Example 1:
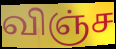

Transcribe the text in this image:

விஞ்ச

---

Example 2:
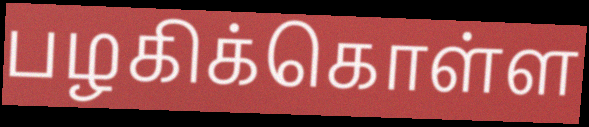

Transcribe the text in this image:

பழகிக்கொள்ள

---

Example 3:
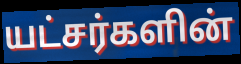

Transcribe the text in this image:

யட்சர்களின்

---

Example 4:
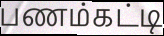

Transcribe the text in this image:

பணம்கட்டி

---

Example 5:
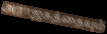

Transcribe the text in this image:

அராஜகத்தையும்